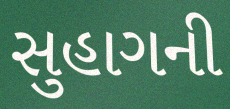
સુહાગની